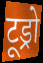
टूड्रो